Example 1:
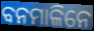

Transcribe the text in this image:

ବନମାଳିନେ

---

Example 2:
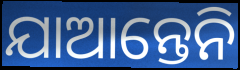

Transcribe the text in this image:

ଯାଆନ୍ତେନି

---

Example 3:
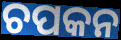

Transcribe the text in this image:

ଚପକନ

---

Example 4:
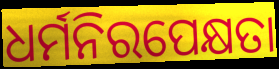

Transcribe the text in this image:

ଧର୍ମନିରପେକ୍ଷତା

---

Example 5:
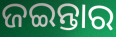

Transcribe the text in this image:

ଜଇନ୍ତାର